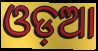
ଓଡ଼ଆ